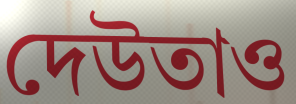
দেউতাও